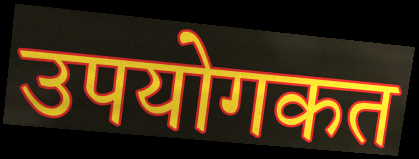
उपयोगकत